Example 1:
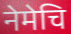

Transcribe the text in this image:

नेमेचि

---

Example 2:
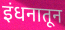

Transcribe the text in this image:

इंधनातून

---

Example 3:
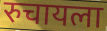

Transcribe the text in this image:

रुचायला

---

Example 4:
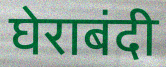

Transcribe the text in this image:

घेराबंदी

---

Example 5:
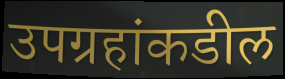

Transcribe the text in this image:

उपग्रहांकडील